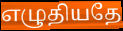
எழுதியதே